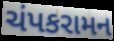
ચંપકરામન